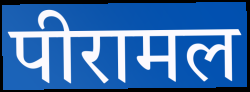
पीरामल